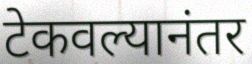
टेकवल्यानंतर